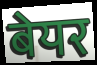
बेयर